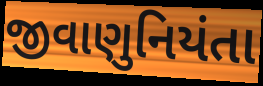
જીવાણુનિયંતા